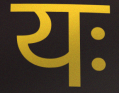
यः